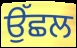
ਉੱਛਲ